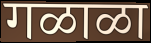
गळाळा